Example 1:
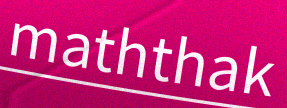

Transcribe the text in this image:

maththak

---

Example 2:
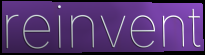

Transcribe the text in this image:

reinvent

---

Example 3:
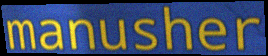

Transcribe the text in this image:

manusher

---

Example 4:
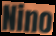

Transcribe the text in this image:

Nino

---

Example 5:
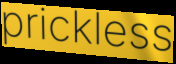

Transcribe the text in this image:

prickless